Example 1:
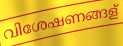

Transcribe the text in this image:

വിശേഷണങ്ങള്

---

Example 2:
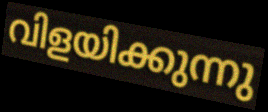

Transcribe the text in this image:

വിളയിക്കുന്നു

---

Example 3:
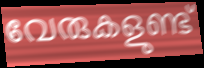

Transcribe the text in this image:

വേരുകളുണ്ട്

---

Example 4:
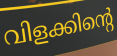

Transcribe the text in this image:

വിളക്കിന്റെ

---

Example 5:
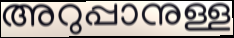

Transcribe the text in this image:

അറുപ്പാനുള്ള